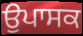
ਉਪਾਸਕ